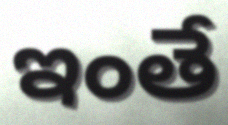
ఇంతే